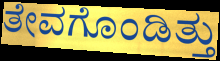
ತೇವಗೊಂಡಿತ್ತು